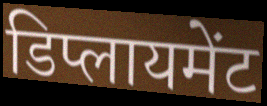
डिप्लायमेंट